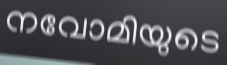
നവോമിയുടെ